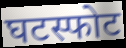
घटस्फोट